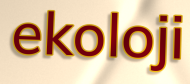
ekoloji